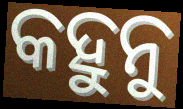
କହୁନୁ